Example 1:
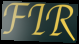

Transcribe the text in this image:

FIR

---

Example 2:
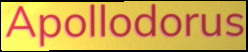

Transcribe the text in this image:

Apollodorus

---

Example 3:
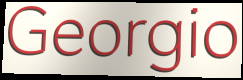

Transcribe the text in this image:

Georgio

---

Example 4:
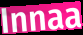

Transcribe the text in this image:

Innaa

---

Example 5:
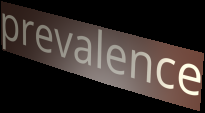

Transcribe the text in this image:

prevalence